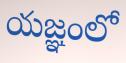
యజ్ఞంలో